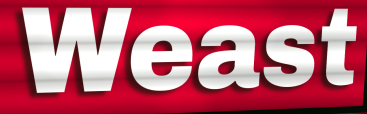
Weast